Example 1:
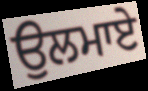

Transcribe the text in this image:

ਉਲਮਾਏ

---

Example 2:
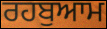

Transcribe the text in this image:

ਰਹਬੁਆਮ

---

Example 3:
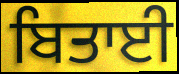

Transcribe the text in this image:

ਬਿਤਾਈ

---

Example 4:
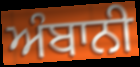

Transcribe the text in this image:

ਅੰਬਾਨੀ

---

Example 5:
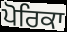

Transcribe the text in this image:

ਪੋਰਿਕਾ